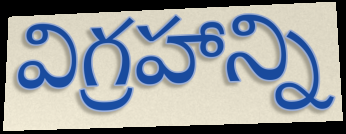
విగ్రహాన్ని